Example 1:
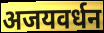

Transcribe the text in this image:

अजयवर्धन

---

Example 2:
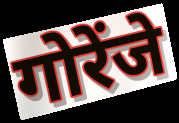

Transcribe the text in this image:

गोरेंजे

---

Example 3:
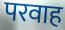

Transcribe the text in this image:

परवाह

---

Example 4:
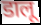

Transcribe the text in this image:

डालू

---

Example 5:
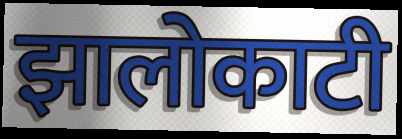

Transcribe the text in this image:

झालोकाटी